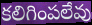
కలిగింపలేవు